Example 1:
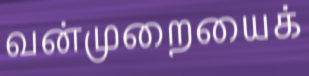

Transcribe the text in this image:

வன்முறையைக்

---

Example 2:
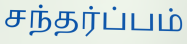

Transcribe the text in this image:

சந்தர்ப்பம்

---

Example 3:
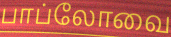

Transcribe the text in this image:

பாப்லோவை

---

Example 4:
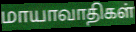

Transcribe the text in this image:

மாயாவாதிகள்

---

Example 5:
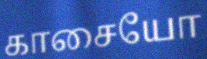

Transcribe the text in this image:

காசையோ